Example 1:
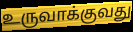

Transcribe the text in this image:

உருவாக்குவது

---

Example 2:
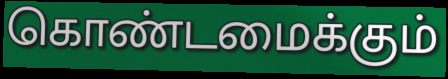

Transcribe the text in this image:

கொண்டமைக்கும்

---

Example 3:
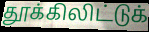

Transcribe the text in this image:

தூக்கிலிட்டுக்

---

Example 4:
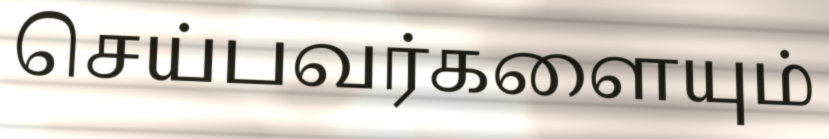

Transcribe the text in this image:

செய்பவர்களையும்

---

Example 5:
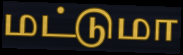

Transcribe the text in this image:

மட்டுமா